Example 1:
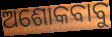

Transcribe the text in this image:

ଅଶୋକବାବୁ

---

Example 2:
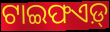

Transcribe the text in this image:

ଟାଇଫଏଡ଼୍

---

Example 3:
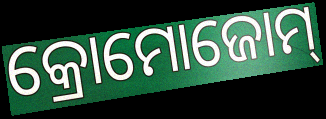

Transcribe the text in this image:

କ୍ରୋମୋଜୋମ୍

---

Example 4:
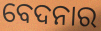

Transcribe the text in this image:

ବେଦନାର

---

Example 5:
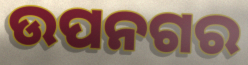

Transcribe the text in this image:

ଉପନଗର